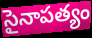
సైనాపత్యం